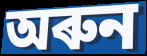
অৰুন